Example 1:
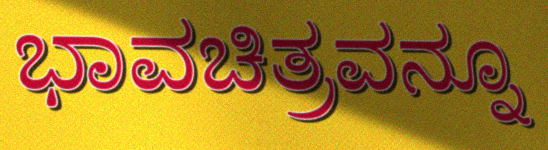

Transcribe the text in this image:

ಭಾವಚಿತ್ರವನ್ನೂ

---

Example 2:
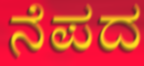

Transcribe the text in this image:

ನೆಪದ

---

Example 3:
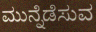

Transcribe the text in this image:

ಮುನ್ನೆಡೆಸುವ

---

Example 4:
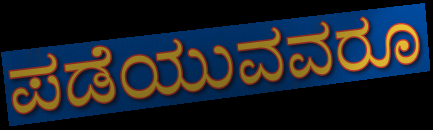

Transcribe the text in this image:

ಪಡೆಯುವವರೂ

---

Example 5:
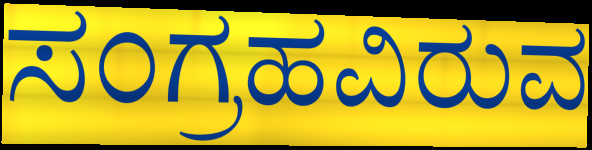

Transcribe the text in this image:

ಸಂಗ್ರಹವಿರುವ